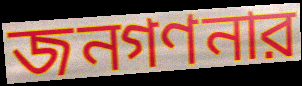
জনগণনার